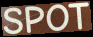
SPOT